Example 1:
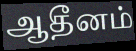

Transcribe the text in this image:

ஆதீனம்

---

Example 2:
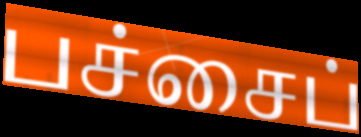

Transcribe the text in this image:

பச்சைப்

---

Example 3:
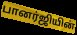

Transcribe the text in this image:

பானர்ஜியின்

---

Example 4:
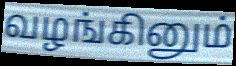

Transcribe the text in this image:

வழங்கினும்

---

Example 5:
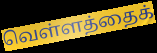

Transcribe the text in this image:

வெள்ளத்தைக்